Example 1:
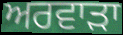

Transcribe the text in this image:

ਅਰਵਾੜਾ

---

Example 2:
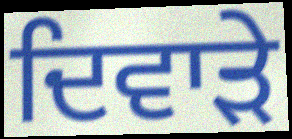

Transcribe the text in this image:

ਦਿਵਾੜੇ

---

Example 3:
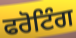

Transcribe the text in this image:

ਫਰੋਟਿੰਗ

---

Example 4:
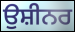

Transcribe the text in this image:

ਉਸ਼ੀਨਰ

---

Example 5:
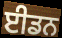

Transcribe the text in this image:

ਈਡਨ